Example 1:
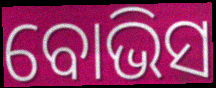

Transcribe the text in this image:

ବୋଭିସ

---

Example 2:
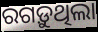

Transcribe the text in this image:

ରଗଡ଼ୁଥିଲା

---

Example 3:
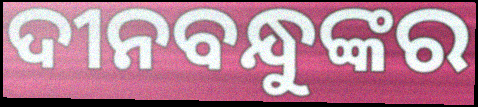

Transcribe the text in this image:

ଦୀନବନ୍ଧୁଙ୍କର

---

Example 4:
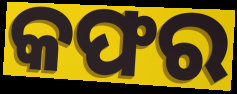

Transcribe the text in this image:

କଫର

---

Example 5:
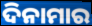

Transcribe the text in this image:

ଦିନାମାର